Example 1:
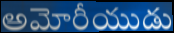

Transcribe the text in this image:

అమోరీయుడు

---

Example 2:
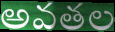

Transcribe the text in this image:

అవతల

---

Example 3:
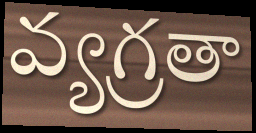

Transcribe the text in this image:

వ్యగ్రతా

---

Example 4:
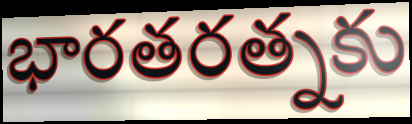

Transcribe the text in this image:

భారతరత్నకు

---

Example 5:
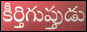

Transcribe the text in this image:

కీర్తిగుప్తుడు